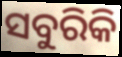
ସବୁରିକି